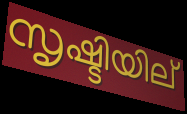
സൃഷ്ടിയില്